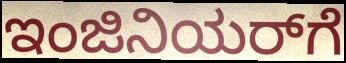
ಇಂಜಿನಿಯರ್‌ಗೆ